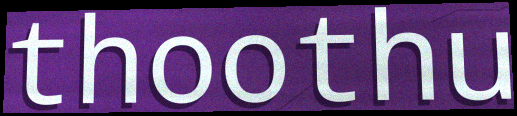
thoothu